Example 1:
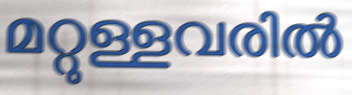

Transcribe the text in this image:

മറ്റുള്ളവരിൽ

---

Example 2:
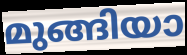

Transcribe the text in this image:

മുങ്ങിയാ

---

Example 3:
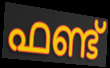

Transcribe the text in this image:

ഫണ്ട്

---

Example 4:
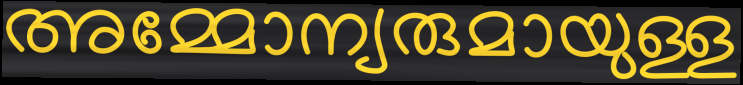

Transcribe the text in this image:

അമ്മോന്യരുമായുള്ള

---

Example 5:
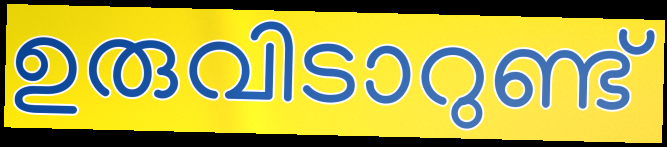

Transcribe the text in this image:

ഉരുവിടാറുണ്ട്